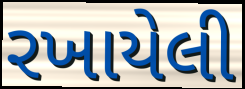
રખાયેલી